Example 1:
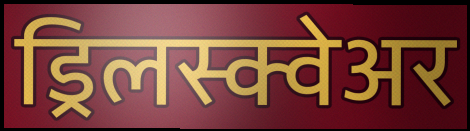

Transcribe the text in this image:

ड्रिलस्क्वेअर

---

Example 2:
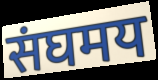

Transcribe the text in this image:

संघमय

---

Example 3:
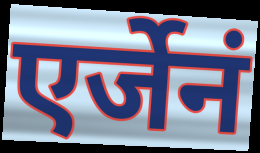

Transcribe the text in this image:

एर्जेनं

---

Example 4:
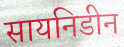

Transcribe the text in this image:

सायनिडीन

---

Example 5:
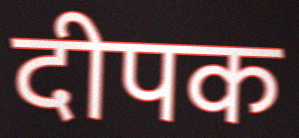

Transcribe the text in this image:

दीपक